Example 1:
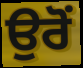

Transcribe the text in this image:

ਉਰੋਂ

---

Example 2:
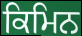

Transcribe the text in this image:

ਕਿਮਿਨ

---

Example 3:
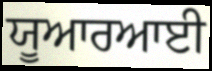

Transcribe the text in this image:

ਯੂਆਰਆਈ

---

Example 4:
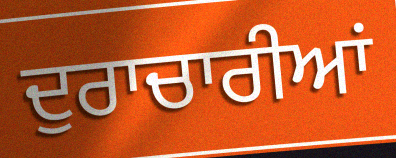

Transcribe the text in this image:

ਦੁਰਾਚਾਰੀਆਂ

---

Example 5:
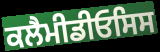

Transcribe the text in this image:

ਕਲੈਮੀਡੀਓਸਿਸ